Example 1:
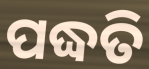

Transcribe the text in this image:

ପଦ୍ଧତି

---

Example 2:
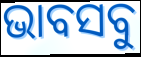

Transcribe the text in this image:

ଭାବସବୁ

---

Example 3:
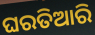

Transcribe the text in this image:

ଘରତିଆରି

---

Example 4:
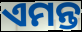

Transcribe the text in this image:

ଏମନ୍ତ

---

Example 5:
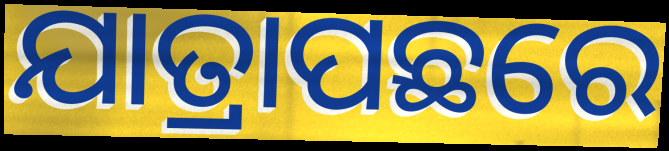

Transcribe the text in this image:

ଯାତ୍ରାପଛରେ